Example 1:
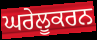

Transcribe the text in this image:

ਘਰੇਲੂਕਰਨ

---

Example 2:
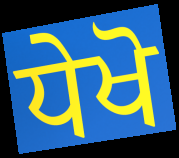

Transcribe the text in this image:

ਧੇਖੋ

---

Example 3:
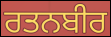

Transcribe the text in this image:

ਰਤਨਬੀਰ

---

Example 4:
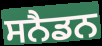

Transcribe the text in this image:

ਸਨੈਡਨ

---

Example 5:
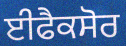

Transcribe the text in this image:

ਈਫੈਕਸੋਰ